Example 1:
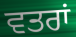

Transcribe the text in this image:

ਵਤਰਾਂ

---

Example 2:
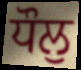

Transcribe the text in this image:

ਧੌਲੁ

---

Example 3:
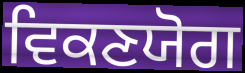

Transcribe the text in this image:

ਵਿਕਣਯੋਗ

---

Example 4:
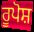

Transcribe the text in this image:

ਰੂਪੋਸ਼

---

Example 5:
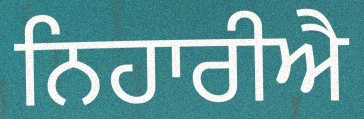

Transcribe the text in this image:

ਨਿਹਾਰੀਐ